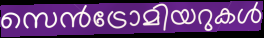
സെൻട്രോമിയറുകൾ